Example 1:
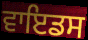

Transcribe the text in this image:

ਵਾਇਡਸ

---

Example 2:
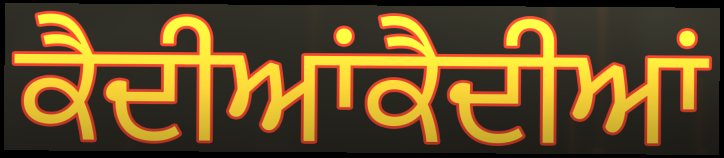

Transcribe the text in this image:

ਕੈਦੀਆਂਕੈਦੀਆਂ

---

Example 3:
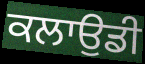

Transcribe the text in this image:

ਕਲਾਉਡੀ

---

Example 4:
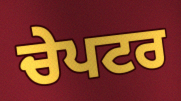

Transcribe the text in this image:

ਚੇਪਟਰ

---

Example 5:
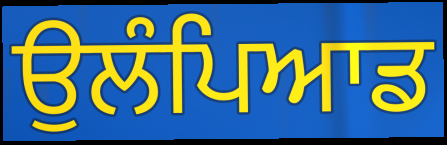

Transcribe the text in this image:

ਉਲੰਪਿਆਡ